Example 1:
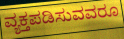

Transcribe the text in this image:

ವ್ಯಕ್ತಪಡಿಸುವವರೂ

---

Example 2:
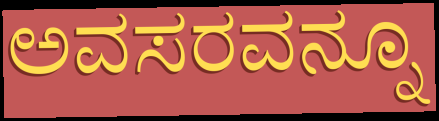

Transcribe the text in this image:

ಅವಸರವನ್ನೂ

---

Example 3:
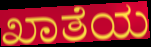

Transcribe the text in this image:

ಖಾತೆಯ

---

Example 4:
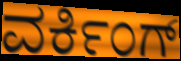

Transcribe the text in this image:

ವರ್ಕಿಂಗ್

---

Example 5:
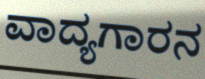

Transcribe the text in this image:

ವಾದ್ಯಗಾರನ